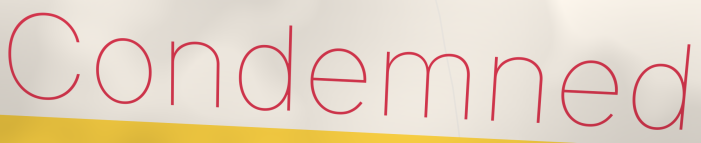
Condemned